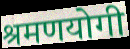
श्रमणयोगी